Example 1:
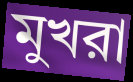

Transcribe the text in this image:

মুখরা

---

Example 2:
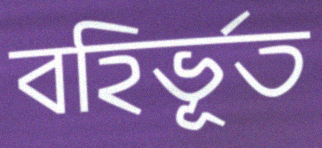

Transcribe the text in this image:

বহির্ভূত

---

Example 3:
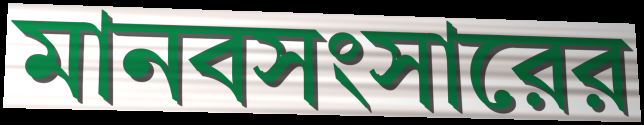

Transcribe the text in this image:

মানবসংসারের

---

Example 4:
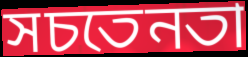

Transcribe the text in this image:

সচতেনতা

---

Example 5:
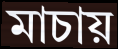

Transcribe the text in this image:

মাচায়